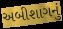
અબીશાગનું